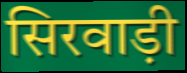
सिरवाड़ी